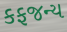
કફજન્ય